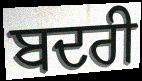
ਬਦਰੀ